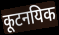
कूटनयिक